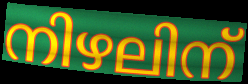
നിഴലിന്